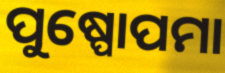
ପୁଷ୍ପୋପମା